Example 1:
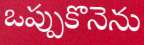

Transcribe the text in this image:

ఒప్పుకొనెను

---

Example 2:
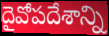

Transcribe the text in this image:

దైవోపదేశాన్ని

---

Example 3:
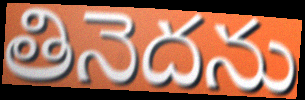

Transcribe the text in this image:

తినెదను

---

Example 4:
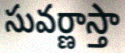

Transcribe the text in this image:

సువర్ణాస్తా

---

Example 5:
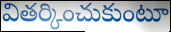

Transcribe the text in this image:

వితర్కించుకుంటూ